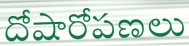
దోషారోపణలు